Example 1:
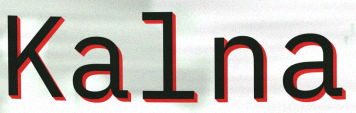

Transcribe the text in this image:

Kalna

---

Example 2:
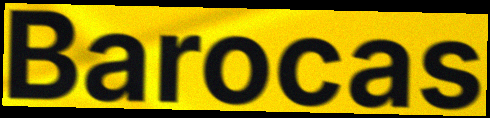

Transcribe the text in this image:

Barocas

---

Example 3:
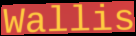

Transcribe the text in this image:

Wallis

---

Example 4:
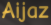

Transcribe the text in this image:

Aijaz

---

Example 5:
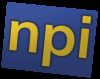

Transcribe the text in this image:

npi